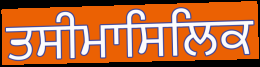
ਤਸੀਮਾਸਿਲਿਕ